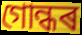
গোন্ধৰ